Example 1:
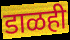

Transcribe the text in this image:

डाळही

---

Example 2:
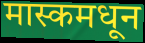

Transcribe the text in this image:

मास्कमधून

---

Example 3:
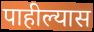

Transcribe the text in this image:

पाहील्यास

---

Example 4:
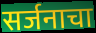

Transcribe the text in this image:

सर्जनाचा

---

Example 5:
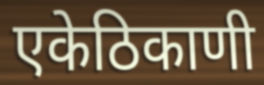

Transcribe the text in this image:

एकेठिकाणी